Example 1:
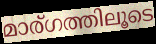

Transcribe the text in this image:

മാര്ഗത്തിലൂടെ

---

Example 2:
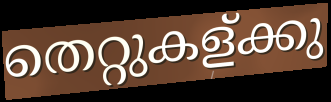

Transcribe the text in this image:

തെറ്റുകള്ക്കു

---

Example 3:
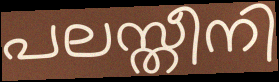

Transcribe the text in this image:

പലസ്തീനി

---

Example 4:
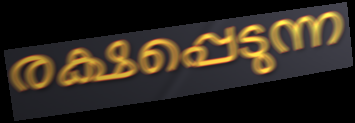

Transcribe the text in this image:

രക്ഷപ്പെടുന്ന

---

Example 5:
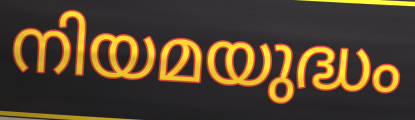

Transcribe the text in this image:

നിയമയുദ്ധം